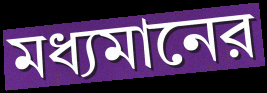
মধ্যমানের